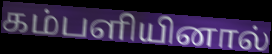
கம்பளியினால்